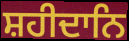
ਸ਼ਹੀਦਾਨਿ